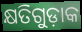
କ୍ଷତିଗୁଡ଼ାକ